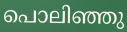
പൊലിഞ്ഞു